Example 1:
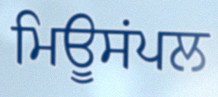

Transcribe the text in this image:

ਮਿਊਸਂਪਲ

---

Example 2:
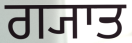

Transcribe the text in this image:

ਗ੍ਯਾਤ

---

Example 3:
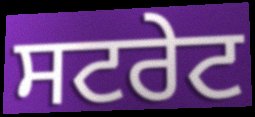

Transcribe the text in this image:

ਸਟਰੇਟ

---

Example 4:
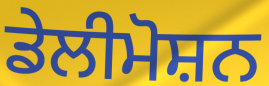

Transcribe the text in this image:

ਡੇਲੀਮੋਸ਼ਨ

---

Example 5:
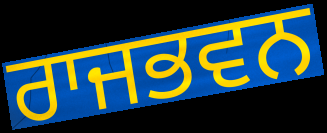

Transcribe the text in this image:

ਰਾਜਭਵਨ